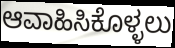
ಆವಾಹಿಸಿಕೊಳ್ಳಲು